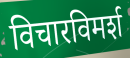
विचारविमर्श